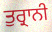
ਤੁਰ੍ਰਾਨੀ